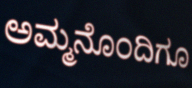
ಅಮ್ಮನೊಂದಿಗೂ